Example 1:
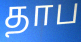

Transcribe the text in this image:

தாப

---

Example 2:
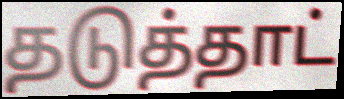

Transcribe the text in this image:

தடுத்தாட்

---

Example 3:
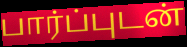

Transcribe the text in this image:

பார்ப்புடன்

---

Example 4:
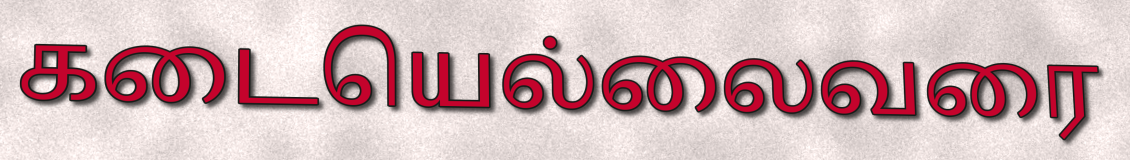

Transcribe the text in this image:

கடையெல்லைவரை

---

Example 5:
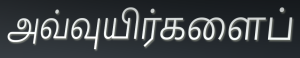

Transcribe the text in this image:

அவ்வுயிர்களைப்